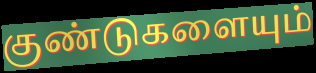
குண்டுகளையும்